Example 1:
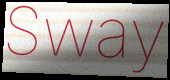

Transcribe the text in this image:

Sway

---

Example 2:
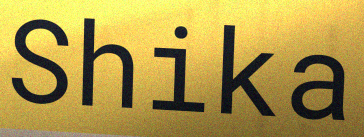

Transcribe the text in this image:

Shika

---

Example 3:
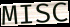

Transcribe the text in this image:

MISC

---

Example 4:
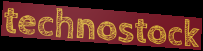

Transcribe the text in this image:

technostock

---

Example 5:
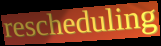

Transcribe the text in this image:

rescheduling